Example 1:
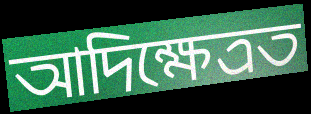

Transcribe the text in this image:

আদিক্ষেত্ৰত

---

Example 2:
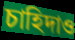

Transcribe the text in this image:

চাহিদাও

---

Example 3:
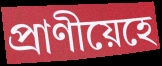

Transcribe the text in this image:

প্ৰাণীয়েহে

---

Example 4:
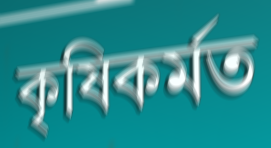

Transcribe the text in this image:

কৃষিকৰ্মত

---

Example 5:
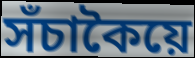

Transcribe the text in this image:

সঁচাকৈয়ে